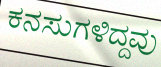
ಕನಸುಗಳಿದ್ದವು